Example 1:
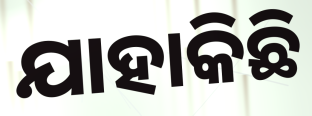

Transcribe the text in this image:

ଯାହାକିଛି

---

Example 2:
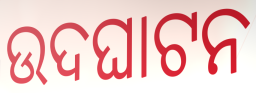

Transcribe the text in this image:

ଉଦଘାଟନ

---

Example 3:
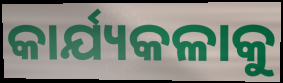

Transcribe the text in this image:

କାର୍ଯ୍ୟକଳାକୁ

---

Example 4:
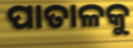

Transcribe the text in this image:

ପାତାଳକୁ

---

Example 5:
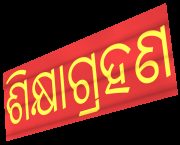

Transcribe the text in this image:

ଶିକ୍ଷାଗ୍ରହଣ